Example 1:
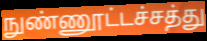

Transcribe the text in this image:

நுண்ணூட்டச்சத்து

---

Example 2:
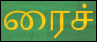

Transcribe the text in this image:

ரைச்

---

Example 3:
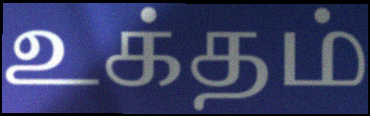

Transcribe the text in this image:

உக்தம்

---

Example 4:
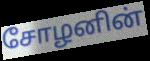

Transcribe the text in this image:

சோழனின்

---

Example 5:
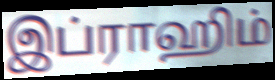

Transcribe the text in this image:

இப்ராஹிம்